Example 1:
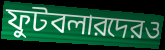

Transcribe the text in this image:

ফুটবলারদেরও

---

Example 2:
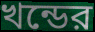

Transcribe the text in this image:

খন্ডের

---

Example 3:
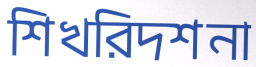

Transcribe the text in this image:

শিখরিদশনা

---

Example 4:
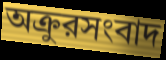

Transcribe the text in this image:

অক্রুরসংবাদ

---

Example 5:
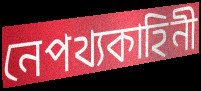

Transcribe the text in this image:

নেপথ্যকাহিনী